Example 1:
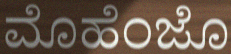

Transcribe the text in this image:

ಮೊಹೆಂಜೊ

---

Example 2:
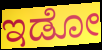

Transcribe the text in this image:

ಇಡೋ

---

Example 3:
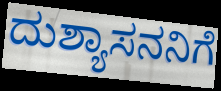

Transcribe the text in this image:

ದುಶ್ಯಾಸನನಿಗೆ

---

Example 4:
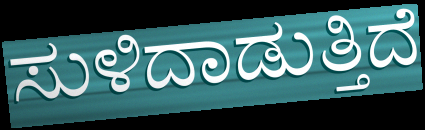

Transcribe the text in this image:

ಸುಳಿದಾಡುತ್ತಿದೆ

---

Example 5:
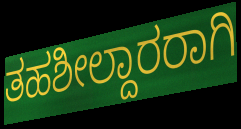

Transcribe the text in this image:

ತಹಶೀಲ್ದಾರರಾಗಿ